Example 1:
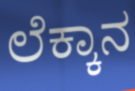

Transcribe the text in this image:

ಲೆಕ್ಕಾನ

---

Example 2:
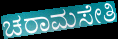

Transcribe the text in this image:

ಚರಾಮಸೇತಿ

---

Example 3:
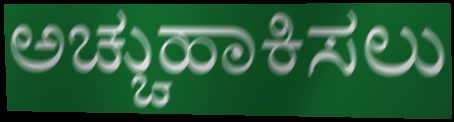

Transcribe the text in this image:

ಅಚ್ಚುಹಾಕಿಸಲು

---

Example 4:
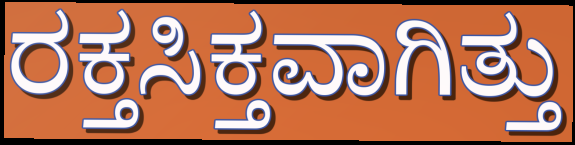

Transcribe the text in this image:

ರಕ್ತಸಿಕ್ತವಾಗಿತ್ತು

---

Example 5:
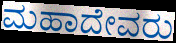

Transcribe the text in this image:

ಮಹಾದೇವರು